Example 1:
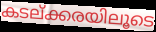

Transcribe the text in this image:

കടല്ക്കരയിലൂടെ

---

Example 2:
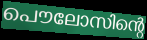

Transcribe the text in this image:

പൌലോസിന്റെ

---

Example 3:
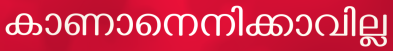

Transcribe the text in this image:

കാണാനെനിക്കാവില്ല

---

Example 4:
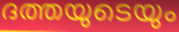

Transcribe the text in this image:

ദത്തയുടെയും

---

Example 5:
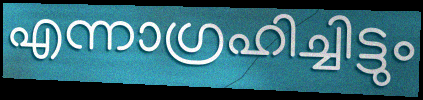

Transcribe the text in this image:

എന്നാഗ്രഹിച്ചിട്ടും